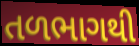
તળભાગથી